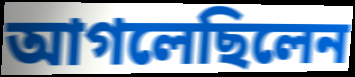
আগলেছিলেন